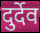
दुर्देव